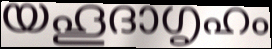
യഹൂദാഗൃഹം